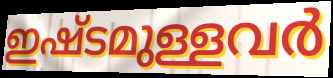
ഇഷ്ടമുള്ളവർ